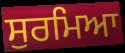
ਸੁਰਮਿਆ